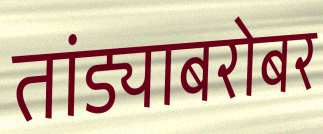
तांड्याबरोबर